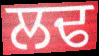
ਲਢ